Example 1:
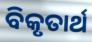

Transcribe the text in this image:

ବିକୃତାର୍ଥ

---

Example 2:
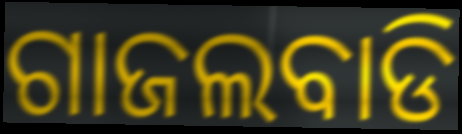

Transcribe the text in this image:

ଗାଜଲବାଡି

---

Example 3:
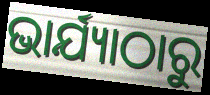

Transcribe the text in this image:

ଭାର୍ଯ୍ୟାଠାରୁ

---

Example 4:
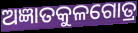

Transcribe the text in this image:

ଅଜ୍ଞାତକୁଳଗୋତ୍ର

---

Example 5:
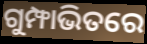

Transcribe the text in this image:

ଗୁମ୍ଫାଭିତରେ